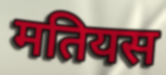
मतियस